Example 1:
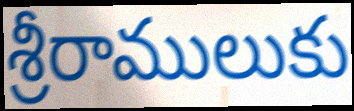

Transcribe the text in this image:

శ్రీరాములుకు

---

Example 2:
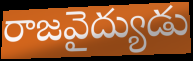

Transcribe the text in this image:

రాజవైద్యుడు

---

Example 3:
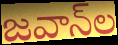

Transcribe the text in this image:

జవాన్‌ల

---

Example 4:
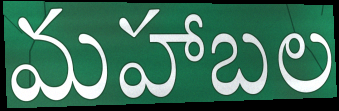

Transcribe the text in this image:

మహాబల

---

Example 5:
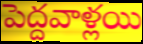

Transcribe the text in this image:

పెద్దవాళ్లయి